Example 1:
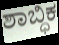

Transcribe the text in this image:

ಶಾಬ್ಧಿಕ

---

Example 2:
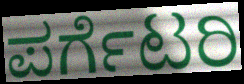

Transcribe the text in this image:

ಪರ್ಗೆಟರಿ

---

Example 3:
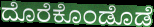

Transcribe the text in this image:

ದೊರೆಕೊಂಡೊಡೆ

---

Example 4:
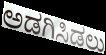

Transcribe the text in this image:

ಅಡಗಿಸಿಡಲು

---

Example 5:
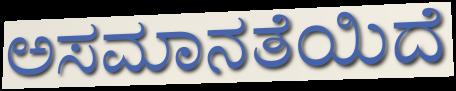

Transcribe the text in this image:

ಅಸಮಾನತೆಯಿದೆ